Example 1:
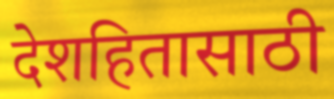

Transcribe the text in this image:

देशहितासाठी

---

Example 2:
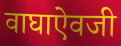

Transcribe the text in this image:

वाघाऐवजी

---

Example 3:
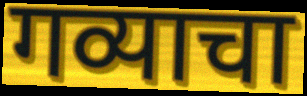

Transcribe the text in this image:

गव्याचा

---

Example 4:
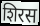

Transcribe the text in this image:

शिरस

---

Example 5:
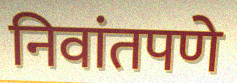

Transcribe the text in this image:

निवांतपणे